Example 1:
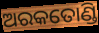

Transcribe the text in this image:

ଅରକତୋଣ୍ଡି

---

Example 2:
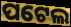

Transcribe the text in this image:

ପଟେଲ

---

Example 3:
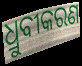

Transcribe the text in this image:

ଧ୍ରୁବୀକରଣ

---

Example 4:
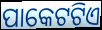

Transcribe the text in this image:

ପାକେଟଟିଏ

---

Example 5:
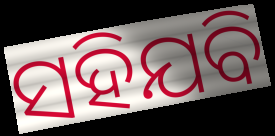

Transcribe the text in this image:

ସହିଯବି